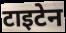
टाइटेन